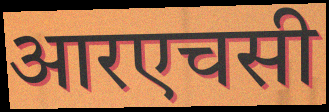
आरएचसी